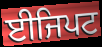
ਈਜਿਪਟ